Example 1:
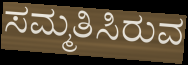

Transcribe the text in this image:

ಸಮ್ಮತಿಸಿರುವ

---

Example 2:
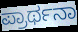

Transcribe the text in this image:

ಪ್ರಾರ್ಥನಾ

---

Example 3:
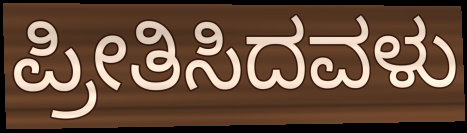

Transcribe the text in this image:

ಪ್ರೀತಿಸಿದವಳು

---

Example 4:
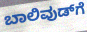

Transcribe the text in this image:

ಬಾಲಿವುಡ್‌ಗೆ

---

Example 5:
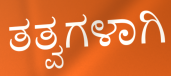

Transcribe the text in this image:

ತತ್ವಗಳಾಗಿ